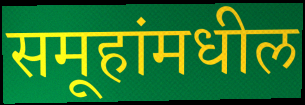
समूहांमधील